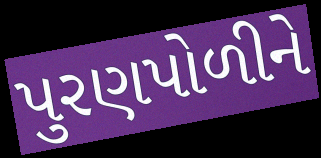
પુરણપોળીને